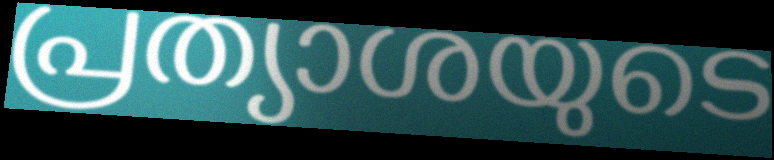
പ്രത്യാശയുടെ